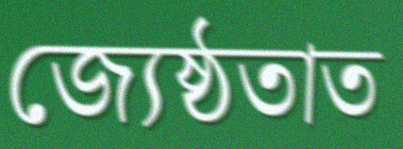
জ্যেষ্ঠতাত